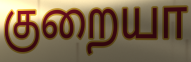
குறையா